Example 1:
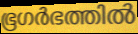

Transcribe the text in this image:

ഭൂഗർഭത്തിൽ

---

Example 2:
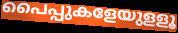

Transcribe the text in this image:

പൈപ്പുകളേയുളളൂ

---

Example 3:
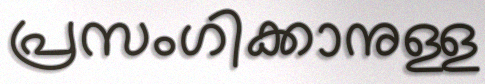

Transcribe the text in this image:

പ്രസംഗിക്കാനുള്ള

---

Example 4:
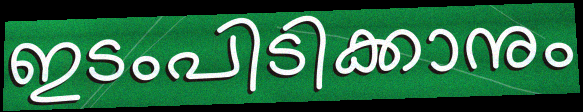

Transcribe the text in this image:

ഇടംപിടിക്കാനും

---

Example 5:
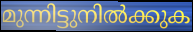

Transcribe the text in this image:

മുന്നിട്ടുനിൽക്കുക